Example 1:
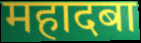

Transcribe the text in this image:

महादबा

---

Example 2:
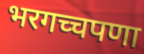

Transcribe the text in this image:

भरगच्चपणा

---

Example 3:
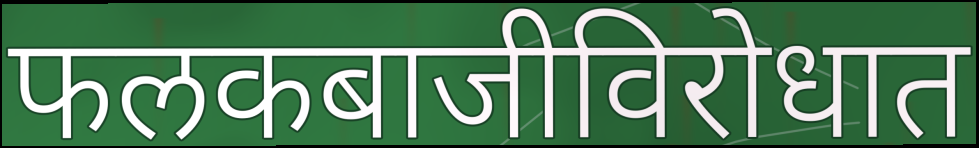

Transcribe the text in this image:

फलकबाजीविरोधात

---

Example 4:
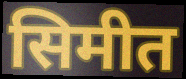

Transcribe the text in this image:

सिमीत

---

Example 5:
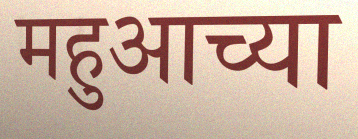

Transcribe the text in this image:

महुआच्या